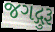
જગદ્ગુરૂ